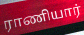
ராணியார்